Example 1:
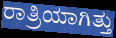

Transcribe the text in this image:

ರಾತ್ರಿಯಾಗಿತ್ತು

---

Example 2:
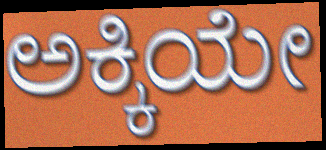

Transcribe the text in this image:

ಅಕ್ಕಿಯೇ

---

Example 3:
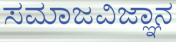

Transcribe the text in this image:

ಸಮಾಜವಿಜ್ಞಾನ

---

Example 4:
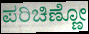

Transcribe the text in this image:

ಪರಿಚಿಣ್ಣೋ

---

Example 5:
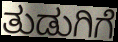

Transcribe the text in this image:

ತುಡುಗಿಗೆ